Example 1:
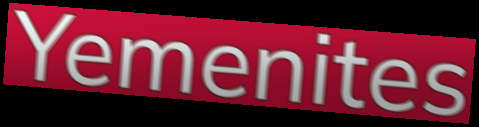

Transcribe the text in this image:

Yemenites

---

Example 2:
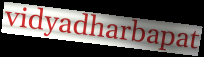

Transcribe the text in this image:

vidyadharbapat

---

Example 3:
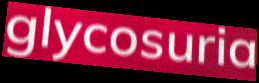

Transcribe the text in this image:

glycosuria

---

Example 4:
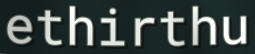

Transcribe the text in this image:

ethirthu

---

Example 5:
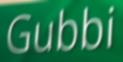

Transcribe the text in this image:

Gubbi